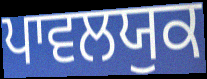
ਪਾਵਲਯੁਕ